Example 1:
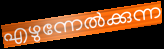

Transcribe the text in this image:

എഴുന്നേൽക്കുന്ന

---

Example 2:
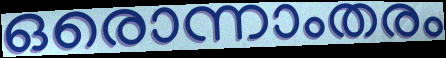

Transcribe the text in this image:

ഒരൊന്നാംതരം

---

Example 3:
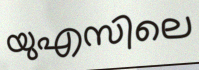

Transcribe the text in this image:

യുഎസിലെ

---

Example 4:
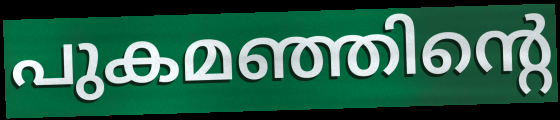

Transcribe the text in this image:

പുകമഞ്ഞിന്റെ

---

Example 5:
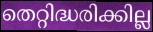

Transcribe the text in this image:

തെറ്റിദ്ധരിക്കില്ല